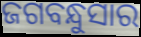
ଜଗବନ୍ଧୁସାର